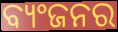
ବ୍ୟଂଜନର